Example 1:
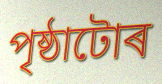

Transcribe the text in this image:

পৃষ্ঠাটোৰ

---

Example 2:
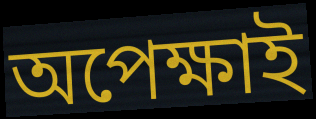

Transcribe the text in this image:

অপেক্ষাই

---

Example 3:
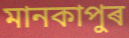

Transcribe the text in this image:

মানকাপুৰ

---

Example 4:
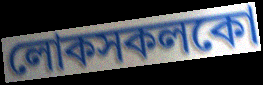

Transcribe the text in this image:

লোকসকলকো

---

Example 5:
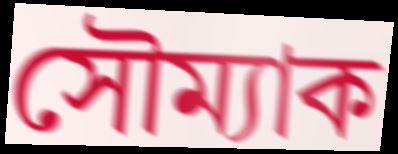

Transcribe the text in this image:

সৌম্যাক